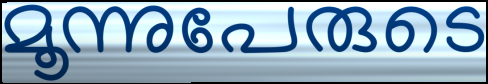
മൂന്നുപേരുടെ